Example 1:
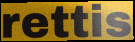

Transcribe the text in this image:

rettis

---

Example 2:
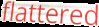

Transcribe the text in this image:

flattered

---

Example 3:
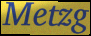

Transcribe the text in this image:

Metzg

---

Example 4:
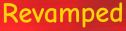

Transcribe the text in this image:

Revamped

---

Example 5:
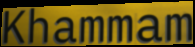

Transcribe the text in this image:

Khammam